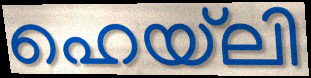
ഹെയ്‌ലി